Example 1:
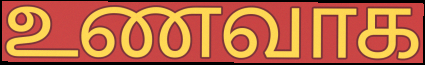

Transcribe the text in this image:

உணவாக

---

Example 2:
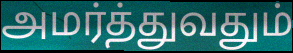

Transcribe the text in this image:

அமர்த்துவதும்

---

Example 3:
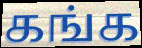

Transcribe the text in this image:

கங்க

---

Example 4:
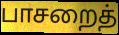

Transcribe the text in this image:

பாசறைத்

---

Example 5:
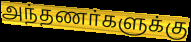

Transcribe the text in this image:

அந்தணர்களுக்கு